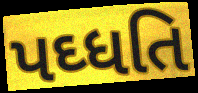
પઘ્ધતિ